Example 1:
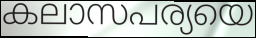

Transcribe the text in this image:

കലാസപര്യയെ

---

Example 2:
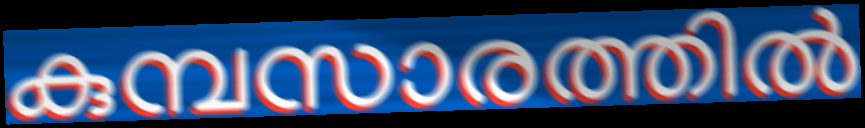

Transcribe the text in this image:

കുമ്പസാരത്തിൽ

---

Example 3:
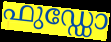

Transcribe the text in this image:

ഫുഡ്ഡോ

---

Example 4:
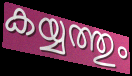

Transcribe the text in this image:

കയ്യത്തും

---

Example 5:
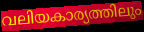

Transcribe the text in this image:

വലിയകാര്യത്തിലും